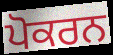
ਪੋਕਰਨ